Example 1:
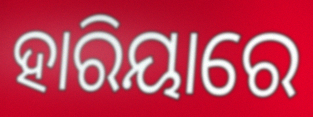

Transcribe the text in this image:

ହାରିୟାରେ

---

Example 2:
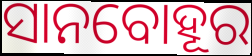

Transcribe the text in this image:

ସାନବୋହୂର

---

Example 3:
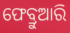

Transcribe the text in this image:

ଫେବ୍ରୁଆରି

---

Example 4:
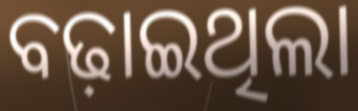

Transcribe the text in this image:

ବଢ଼ାଇଥିଲା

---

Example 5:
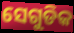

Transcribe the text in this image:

ସେଗୁଡିକ